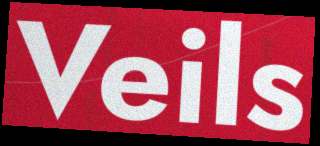
Veils